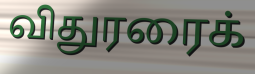
விதுரரைக்